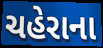
ચહેરાના